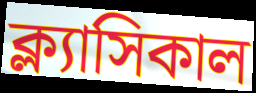
ক্ল্যাসিকাল